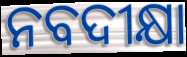
ନବଦୀକ୍ଷା